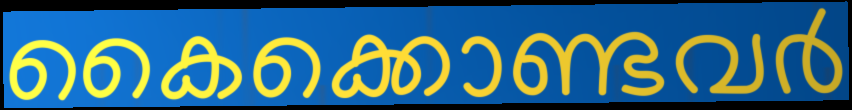
കൈക്കൊണ്ടവർ